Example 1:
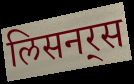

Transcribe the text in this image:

लिसनर्स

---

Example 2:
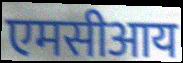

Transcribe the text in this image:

एमसीआय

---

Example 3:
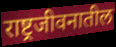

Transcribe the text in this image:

राष्ट्रजीवनातील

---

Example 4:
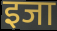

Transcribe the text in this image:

इजा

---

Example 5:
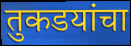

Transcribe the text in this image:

तुकडयांचा